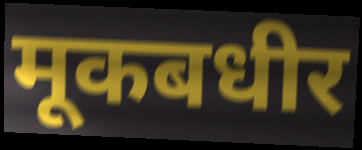
मूकबधीर